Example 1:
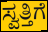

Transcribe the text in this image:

ಸ್ವತ್ತಿಗೆ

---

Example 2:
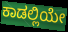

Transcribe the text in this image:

ಕಾಡಲ್ಲಿಯೇ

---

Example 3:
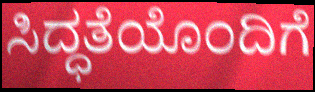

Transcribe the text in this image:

ಸಿದ್ಧತೆಯೊಂದಿಗೆ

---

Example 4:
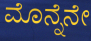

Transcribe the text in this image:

ಮೊನ್ನೆನೇ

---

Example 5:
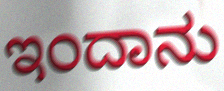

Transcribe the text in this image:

ಇಂದಾನು